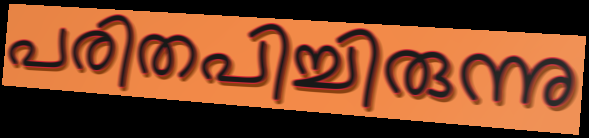
പരിതപിച്ചിരുന്നു